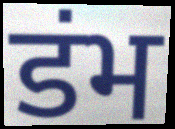
डंभ